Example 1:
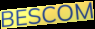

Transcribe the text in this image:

BESCOM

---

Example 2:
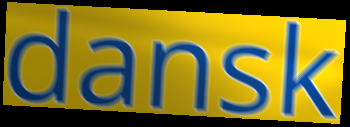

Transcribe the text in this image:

dansk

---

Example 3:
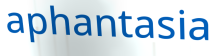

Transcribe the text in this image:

aphantasia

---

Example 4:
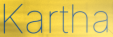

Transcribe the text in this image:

Kartha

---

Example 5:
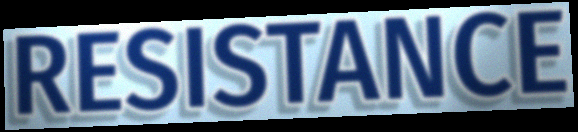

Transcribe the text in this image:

RESISTANCE